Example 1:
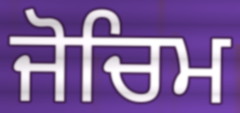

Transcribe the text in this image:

ਜੋਚਿਮ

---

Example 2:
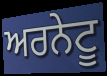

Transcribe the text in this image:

ਅਰਨੇਟੂ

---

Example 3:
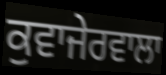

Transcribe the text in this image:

ਕੁਵਾਜੇਰਵਾਲਾ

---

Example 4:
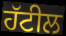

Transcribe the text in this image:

ਹੱਟੀਲ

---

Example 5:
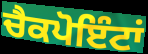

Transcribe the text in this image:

ਚੈਕਪੋਇੰਟਾਂ